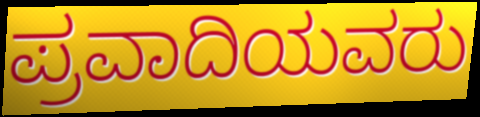
ಪ್ರವಾದಿಯವರು